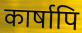
कार्षापि